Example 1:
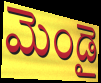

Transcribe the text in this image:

మెండై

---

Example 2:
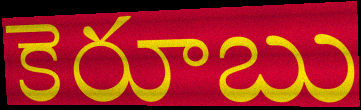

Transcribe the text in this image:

కెరూబు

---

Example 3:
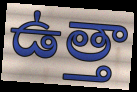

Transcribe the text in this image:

ఉత్తా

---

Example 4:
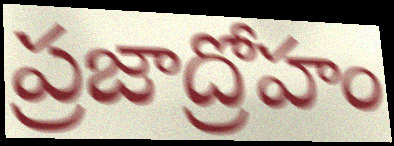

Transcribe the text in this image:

ప్రజాద్రోహం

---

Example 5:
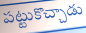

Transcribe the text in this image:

పట్టుకొచ్చాడు